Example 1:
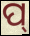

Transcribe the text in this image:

ପ୍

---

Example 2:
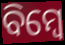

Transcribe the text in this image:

ବିମ୍ବେ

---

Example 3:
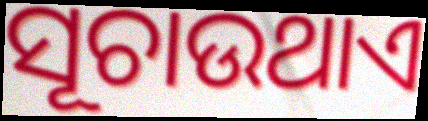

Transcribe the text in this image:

ସୂଚାଉଥାଏ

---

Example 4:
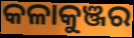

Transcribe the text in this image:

କଳାକୁଞ୍ଜର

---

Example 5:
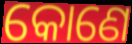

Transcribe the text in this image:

କୋଣେ